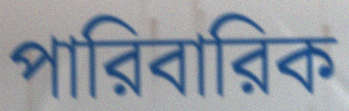
পারিবারিক